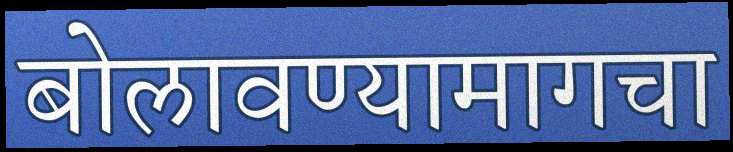
बोलावण्यामागचा